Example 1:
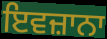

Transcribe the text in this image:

ਇਵਜ਼ਾਨਾ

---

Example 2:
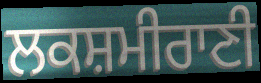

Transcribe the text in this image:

ਲਕਸ਼ਮੀਰਾਣੀ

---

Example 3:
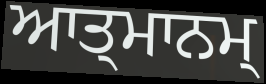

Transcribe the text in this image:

ਆਤ੍ਮਾਨਮ੍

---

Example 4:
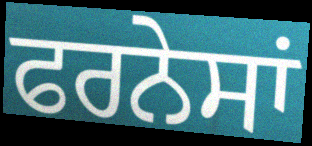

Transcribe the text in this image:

ਫਰਨੇਸਾਂ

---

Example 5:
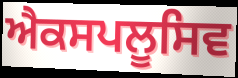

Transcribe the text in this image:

ਐਕਸਪਲੂਸਿਵ